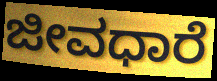
ಜೀವಧಾರೆ